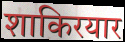
शाकिरयार